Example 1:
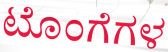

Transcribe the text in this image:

ಟೊಂಗೆಗಳ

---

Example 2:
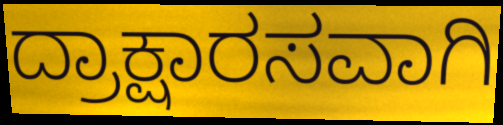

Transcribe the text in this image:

ದ್ರಾಕ್ಷಾರಸವಾಗಿ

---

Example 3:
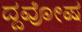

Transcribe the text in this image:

ದ್ದವೋಷ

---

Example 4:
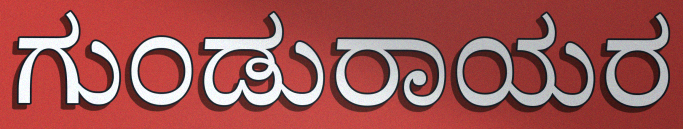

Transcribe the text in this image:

ಗುಂಡುರಾಯರ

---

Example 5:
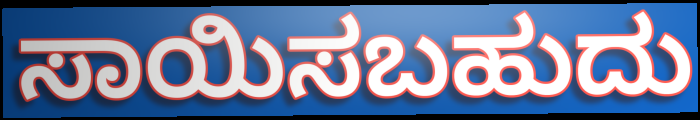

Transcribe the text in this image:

ಸಾಯಿಸಬಹುದು